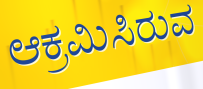
ಆಕ್ರಮಿಸಿರುವ